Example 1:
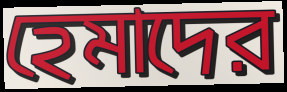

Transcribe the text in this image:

হেমাদের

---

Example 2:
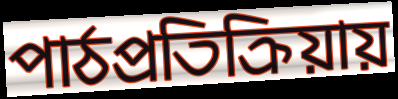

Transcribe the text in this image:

পাঠপ্রতিক্রিয়ায়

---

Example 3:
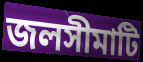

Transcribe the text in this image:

জলসীমাটি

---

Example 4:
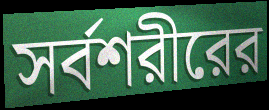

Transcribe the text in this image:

সর্বশরীরের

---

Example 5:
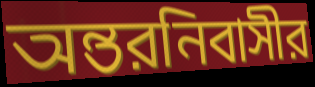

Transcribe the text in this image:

অন্তরনিবাসীর